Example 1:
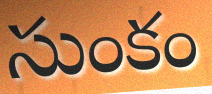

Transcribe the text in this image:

సుంకం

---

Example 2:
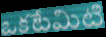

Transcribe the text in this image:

ఒకటేమిటి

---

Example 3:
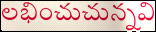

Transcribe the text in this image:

లభించుచున్నవి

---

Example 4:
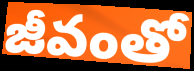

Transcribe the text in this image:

జీవంతో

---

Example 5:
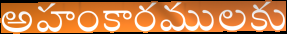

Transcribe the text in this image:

అహంకారములకు